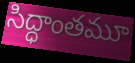
సిద్ధాంతమూ